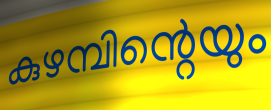
കുഴമ്പിന്റെയും